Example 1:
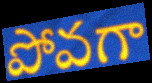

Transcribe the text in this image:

పోవగా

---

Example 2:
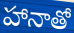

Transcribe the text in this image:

హానాతో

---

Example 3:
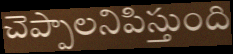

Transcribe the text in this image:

చెప్పాలనిపిస్తుంది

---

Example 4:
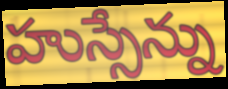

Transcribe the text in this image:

హుస్సేన్ను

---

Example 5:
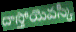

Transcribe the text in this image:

దాస్తోయెవస్కీ